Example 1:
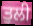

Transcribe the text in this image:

ਤੁਲੀ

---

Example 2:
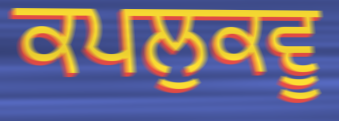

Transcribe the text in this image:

ਕਪਲੁਕਵੂ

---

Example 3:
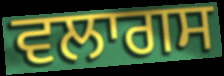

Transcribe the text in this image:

ਵਲਾਗਸ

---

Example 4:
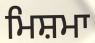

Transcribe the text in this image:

ਮਿਸ਼ਮਾ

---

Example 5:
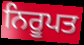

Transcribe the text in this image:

ਨਿਰੂਪਤ